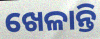
ଖେଳାନ୍ତି